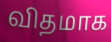
விதமாக